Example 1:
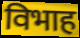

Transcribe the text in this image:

विभाह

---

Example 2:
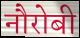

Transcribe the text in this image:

नौरोबी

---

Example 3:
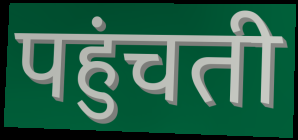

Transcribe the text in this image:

पहुंचती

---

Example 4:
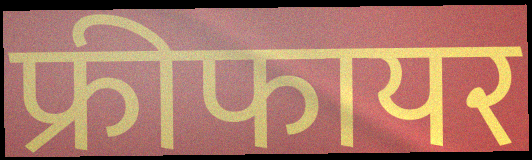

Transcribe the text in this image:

फ्रीफायर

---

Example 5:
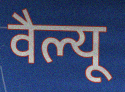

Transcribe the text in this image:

वैल्यू